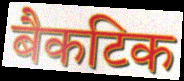
बैकटिक